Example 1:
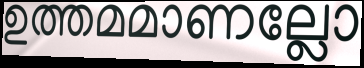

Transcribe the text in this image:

ഉത്തമമാണല്ലോ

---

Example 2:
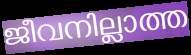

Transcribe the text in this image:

ജീവനില്ലാത്ത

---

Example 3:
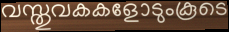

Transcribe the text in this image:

വസ്തുവകകളോടുംകൂടെ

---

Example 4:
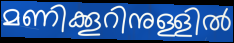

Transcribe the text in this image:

മണിക്കൂറിനുള്ളിൽ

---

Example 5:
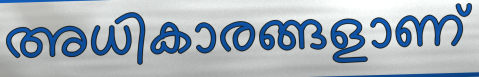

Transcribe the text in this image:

അധികാരങ്ങളാണ്